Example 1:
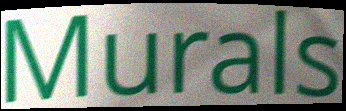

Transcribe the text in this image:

Murals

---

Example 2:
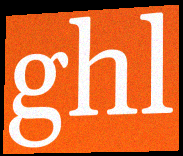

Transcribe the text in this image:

ghl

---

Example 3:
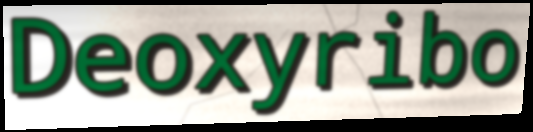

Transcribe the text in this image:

Deoxyribo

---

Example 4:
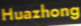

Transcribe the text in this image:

Huazhong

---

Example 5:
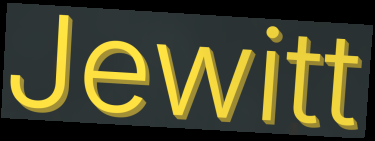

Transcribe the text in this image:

Jewitt